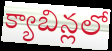
క్యాబిన్లలో